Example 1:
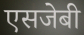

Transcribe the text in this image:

एसजेबी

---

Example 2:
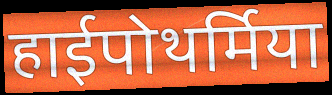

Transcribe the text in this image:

हाईपोथर्मिया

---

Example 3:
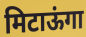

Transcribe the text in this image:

मिटाऊंगा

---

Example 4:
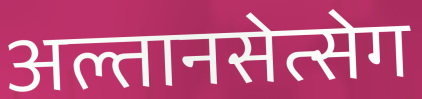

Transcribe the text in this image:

अल्तानसेत्सेग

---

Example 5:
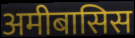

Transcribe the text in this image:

अमीबासिस